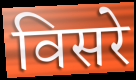
विसरे